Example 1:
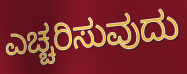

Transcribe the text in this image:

ಎಚ್ಚರಿಸುವುದು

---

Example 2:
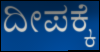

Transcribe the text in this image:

ದೀಪಕ್ಕೆ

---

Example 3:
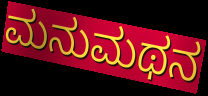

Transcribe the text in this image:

ಮನುಮಥನ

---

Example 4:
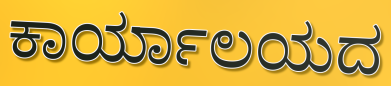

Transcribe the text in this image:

ಕಾರ್ಯಾಲಯದ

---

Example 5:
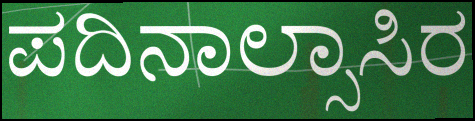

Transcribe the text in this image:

ಪದಿನಾಲ್ಸಾಸಿರ